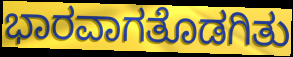
ಭಾರವಾಗತೊಡಗಿತು